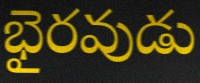
భైరవుడు